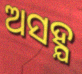
ଅସହ୍ଯ